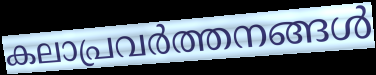
കലാപ്രവർത്തനങ്ങൾ